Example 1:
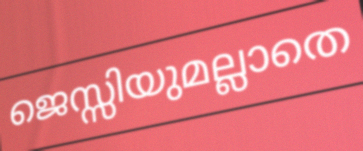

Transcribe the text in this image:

ജെസ്സിയുമല്ലാതെ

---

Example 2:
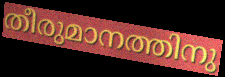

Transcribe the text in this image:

തീരുമാനത്തിനു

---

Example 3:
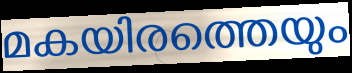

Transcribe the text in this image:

മകയിരത്തെയും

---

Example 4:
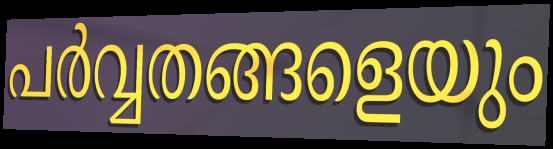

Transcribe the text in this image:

പർവ്വതങ്ങളെയും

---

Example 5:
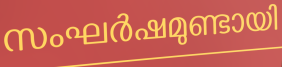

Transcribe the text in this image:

സംഘർഷമുണ്ടായി